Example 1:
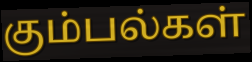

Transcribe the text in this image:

கும்பல்கள்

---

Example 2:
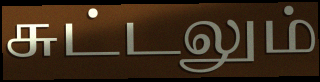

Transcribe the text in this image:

சுட்டலும்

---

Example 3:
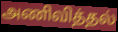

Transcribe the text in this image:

அணிவித்தல்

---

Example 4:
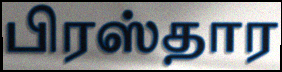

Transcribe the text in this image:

பிரஸ்தார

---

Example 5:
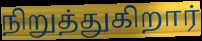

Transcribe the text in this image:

நிறுத்துகிறார்